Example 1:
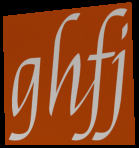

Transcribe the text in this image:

ghfj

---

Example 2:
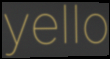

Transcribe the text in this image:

yello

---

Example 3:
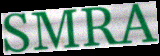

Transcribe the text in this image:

SMRA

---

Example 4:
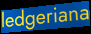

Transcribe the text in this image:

ledgeriana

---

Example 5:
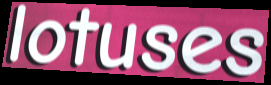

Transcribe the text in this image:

lotuses